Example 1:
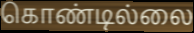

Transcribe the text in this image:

கொண்டில்லை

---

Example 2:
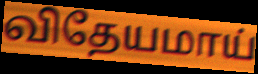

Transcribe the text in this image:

விதேயமாய்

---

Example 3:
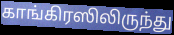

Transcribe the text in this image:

காங்கிரஸிலிருந்து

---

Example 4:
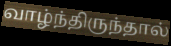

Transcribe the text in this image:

வாழ்ந்திருந்தால்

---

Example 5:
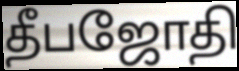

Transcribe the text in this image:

தீபஜோதி